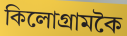
কিলোগ্ৰামকৈ